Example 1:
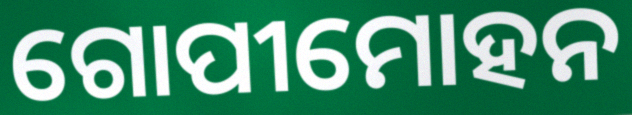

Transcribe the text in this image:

ଗୋପୀମୋହନ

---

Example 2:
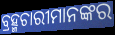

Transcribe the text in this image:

ବ୍ରହ୍ମଚାରୀମାନଙ୍କର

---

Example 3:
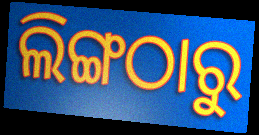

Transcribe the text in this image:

ଲିଙ୍ଗଠାରୁ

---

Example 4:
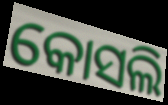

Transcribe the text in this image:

କୋସଲି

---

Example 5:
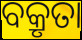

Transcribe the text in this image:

ବକ୍ରୃତା